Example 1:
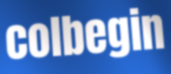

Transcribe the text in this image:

colbegin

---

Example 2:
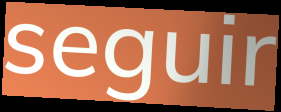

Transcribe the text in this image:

seguir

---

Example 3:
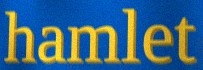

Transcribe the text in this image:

hamlet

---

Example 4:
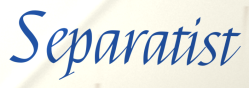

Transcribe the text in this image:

Separatist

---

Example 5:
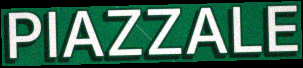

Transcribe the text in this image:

PIAZZALE